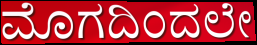
ಮೊಗದಿಂದಲೇ